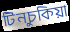
টিনচুকিয়া